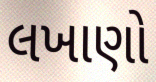
લખાણો